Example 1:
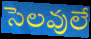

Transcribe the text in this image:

సెలవులే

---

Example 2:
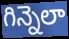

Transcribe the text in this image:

గిన్నెలా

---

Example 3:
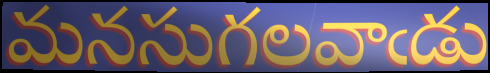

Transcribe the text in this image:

మనసుగలవాఁడు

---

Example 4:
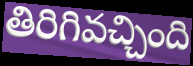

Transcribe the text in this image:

తిరిగివచ్చింది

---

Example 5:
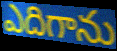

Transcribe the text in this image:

ఎదిగాను